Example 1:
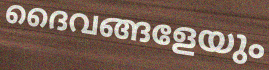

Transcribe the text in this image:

ദൈവങ്ങളേയും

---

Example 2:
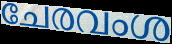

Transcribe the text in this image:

ചേരവംശ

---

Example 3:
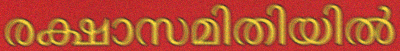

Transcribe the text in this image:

രക്ഷാസമിതിയിൽ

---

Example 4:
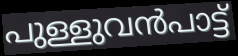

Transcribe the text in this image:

പുള്ളുവൻപാട്ട്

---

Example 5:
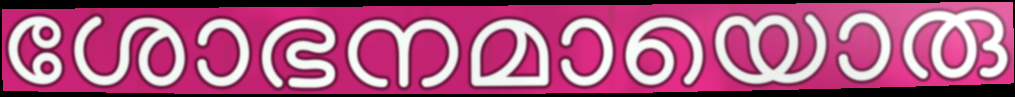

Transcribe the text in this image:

ശോഭനമായൊരു